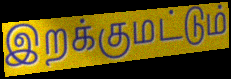
இறக்குமட்டும்